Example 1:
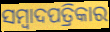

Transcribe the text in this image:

ସମ୍ବାଦପତ୍ରିକାର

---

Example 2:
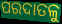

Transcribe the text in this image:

ପରଦାତଳୁ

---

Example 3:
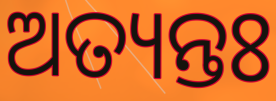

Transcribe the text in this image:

ଅତ୍ୟନ୍ତଃ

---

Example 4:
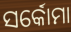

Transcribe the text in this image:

ସର୍କୋମା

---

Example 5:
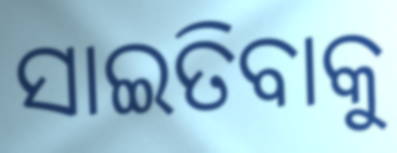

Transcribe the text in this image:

ସାଇତିବାକୁ